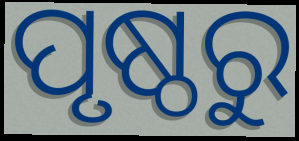
ପୃଷ୍ଠରୁ